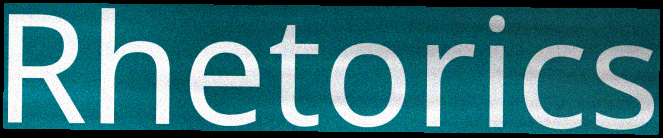
Rhetorics